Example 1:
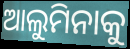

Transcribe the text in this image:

ଆଲୁମିନାକୁ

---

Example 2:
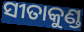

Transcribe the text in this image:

ସୀତାକୁଣ୍ଡ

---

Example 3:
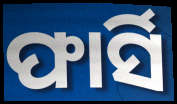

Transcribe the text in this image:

ଫାର୍ସି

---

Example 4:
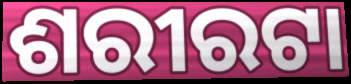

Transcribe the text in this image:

ଶରୀରଟା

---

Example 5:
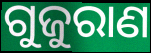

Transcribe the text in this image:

ଗୁଜୁରାଣ